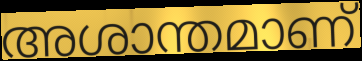
അശാന്തമാണ്